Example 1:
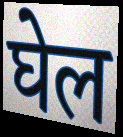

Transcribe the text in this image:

घेल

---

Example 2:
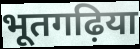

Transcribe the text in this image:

भूतगढ़िया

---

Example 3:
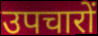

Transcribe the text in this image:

उपचारों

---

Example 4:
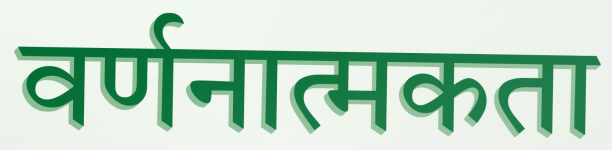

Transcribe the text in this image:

वर्णनात्मकता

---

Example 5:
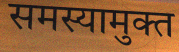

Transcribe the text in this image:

समस्यामुक्त